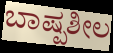
ಬಾಷ್ಪಶೀಲ